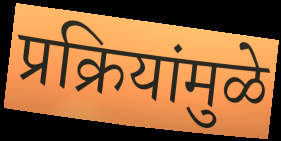
प्रक्रियांमुळे